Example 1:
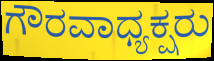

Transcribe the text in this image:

ಗೌರವಾಧ್ಯಕ್ಷರು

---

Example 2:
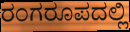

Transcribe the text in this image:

ರಂಗರೂಪದಲ್ಲಿ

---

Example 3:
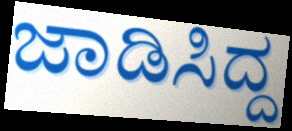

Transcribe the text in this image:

ಜಾಡಿಸಿದ್ದ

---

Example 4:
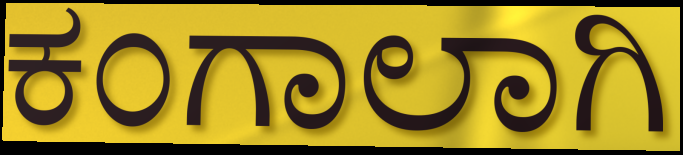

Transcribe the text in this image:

ಕಂಗಾಲಾಗಿ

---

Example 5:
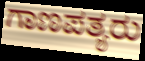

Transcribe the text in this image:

ಗಾಣಪತ್ಯರು